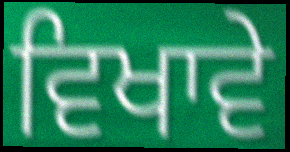
ਵਿਖਾਵੇ